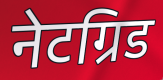
नेटग्रिड